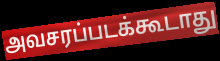
அவசரப்படக்கூடாது